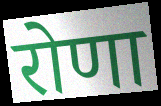
रोणा